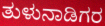
ತುಳುನಾಡಿಗರ